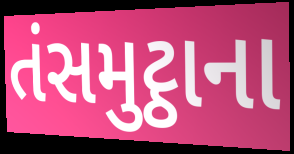
તંસમુટ્ઠાના